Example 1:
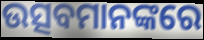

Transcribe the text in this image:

ଉତ୍ସବମାନଙ୍କରେ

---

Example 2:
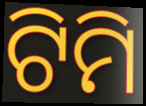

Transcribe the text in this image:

ଟିମି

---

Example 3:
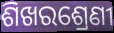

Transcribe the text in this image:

ଶିଖରଶ୍ରେଣୀ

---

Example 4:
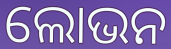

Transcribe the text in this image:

ଲୋଭନ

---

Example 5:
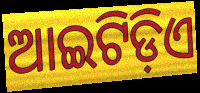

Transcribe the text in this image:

ଆଇଟିଡ଼ିଏ